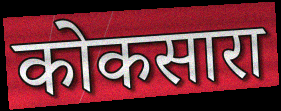
कोकसारा